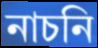
নাচনি